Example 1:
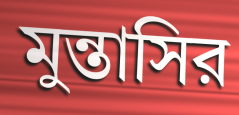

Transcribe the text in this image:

মুন্তাসির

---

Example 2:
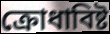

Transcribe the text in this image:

ক্রোধাবিষ্ট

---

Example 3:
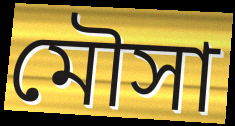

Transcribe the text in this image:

মৌসা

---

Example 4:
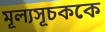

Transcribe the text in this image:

মূল্যসূচককে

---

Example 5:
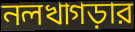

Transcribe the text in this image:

নলখাগড়ার